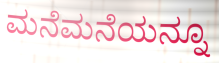
ಮನೆಮನೆಯನ್ನೂ